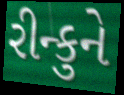
રીન્કુને